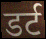
डर्ट